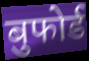
बुफोर्ड